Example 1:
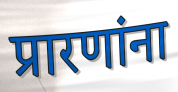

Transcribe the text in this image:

प्रारणांना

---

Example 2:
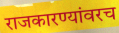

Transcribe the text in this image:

राजकारण्यांवरच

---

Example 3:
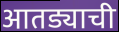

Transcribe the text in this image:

आतड्याची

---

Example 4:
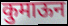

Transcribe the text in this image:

कुमाऊन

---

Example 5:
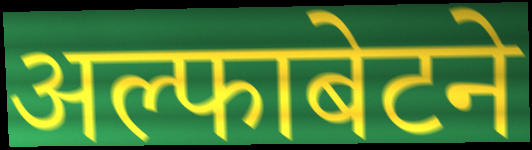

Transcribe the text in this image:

अल्फाबेटने